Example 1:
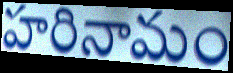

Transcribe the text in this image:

హరినామం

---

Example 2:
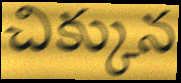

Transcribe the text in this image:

చిక్కున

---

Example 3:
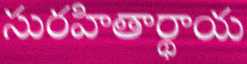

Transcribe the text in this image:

సురహితార్థాయ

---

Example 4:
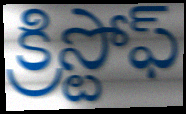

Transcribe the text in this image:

క్రిస్టోఫ్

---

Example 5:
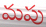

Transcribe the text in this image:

మపు